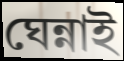
ঘেন্নাই